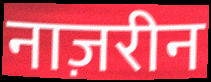
नाज़रीन